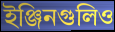
ইঞ্জিনগুলিও